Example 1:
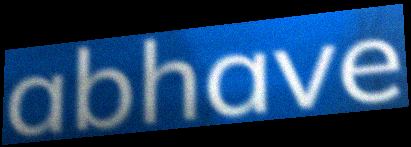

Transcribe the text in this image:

abhave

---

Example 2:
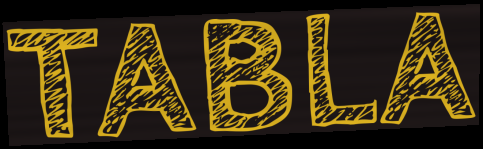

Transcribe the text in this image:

TABLA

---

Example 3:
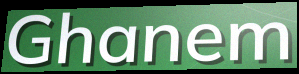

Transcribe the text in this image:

Ghanem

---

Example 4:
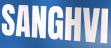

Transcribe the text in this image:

SANGHVI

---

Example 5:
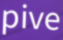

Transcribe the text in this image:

pive